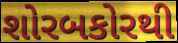
શોરબકોરથી